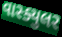
વાસ્ક્યુલર